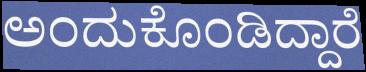
ಅಂದುಕೊಂಡಿದ್ದಾರೆ